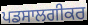
ਪਡਸਾਲਗੀਕਰ